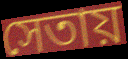
সেতায়